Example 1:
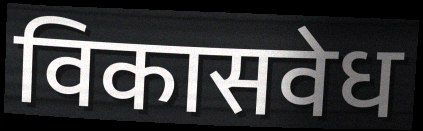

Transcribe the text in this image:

विकासवेध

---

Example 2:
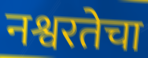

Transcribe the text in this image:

नश्वरतेचा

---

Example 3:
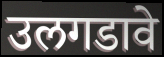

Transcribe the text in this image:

उलगडावे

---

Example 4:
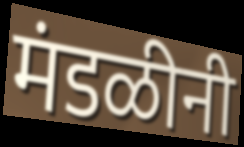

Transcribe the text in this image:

मंडळीनी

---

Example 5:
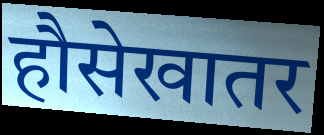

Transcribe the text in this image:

हौसेखातर